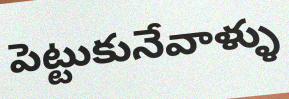
పెట్టుకునేవాళ్ళు